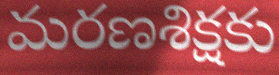
మరణశిక్షకు